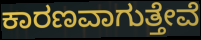
ಕಾರಣವಾಗುತ್ತೇವೆ